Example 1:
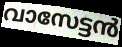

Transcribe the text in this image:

വാസേട്ടൻ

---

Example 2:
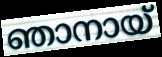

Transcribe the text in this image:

ഞാനായ്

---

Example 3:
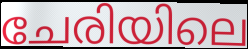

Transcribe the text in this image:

ചേരിയിലെ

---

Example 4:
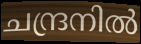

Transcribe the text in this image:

ചന്ദ്രനിൽ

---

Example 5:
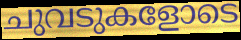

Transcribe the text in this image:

ചുവടുകളോടെ